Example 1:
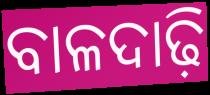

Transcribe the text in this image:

ବାଳଦାଢ଼ି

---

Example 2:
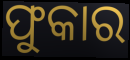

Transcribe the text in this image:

ଫୁକାର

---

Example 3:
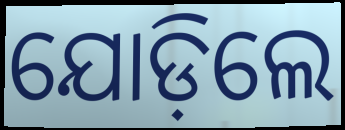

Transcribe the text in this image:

ଯୋଡ଼ିଲେ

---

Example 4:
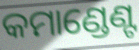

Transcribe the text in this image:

କମାଣ୍ଡେଣ୍ଟ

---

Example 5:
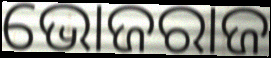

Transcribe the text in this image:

ଭୋଜରାଜ